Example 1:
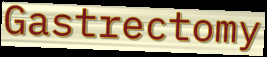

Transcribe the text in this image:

Gastrectomy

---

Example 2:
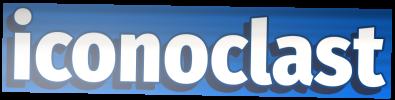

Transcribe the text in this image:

iconoclast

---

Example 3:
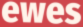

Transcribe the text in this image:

ewes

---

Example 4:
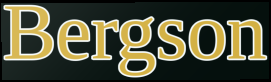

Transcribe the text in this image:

Bergson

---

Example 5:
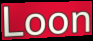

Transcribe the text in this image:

Loon